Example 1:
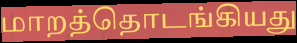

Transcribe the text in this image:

மாறத்தொடங்கியது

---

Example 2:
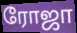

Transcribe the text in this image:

ரோஜா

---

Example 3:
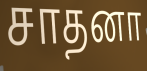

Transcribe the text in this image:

சாதனா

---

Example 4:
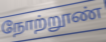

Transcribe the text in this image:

நோற்றூண்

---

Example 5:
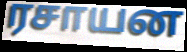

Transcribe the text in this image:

ரசாயன